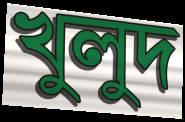
খুলুদ